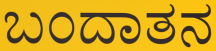
ಬಂದಾತನ